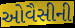
ઓવૈસીની